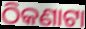
ଠିକଣାଟା